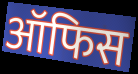
ऑफिस